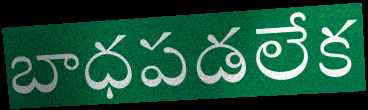
బాధపడలేక